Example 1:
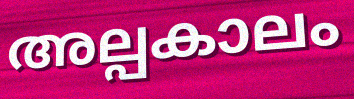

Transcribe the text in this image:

അല്പകാലം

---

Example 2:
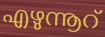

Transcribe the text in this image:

എഴുന്നൂറ്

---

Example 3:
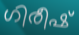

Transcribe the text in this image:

ഗിരീഷ്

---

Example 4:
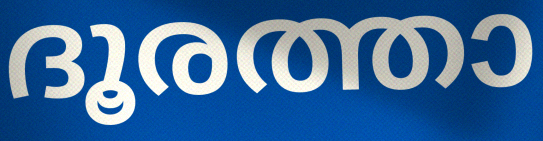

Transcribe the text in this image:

ദൂരത്താ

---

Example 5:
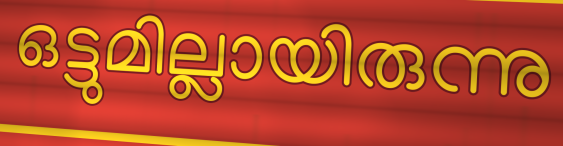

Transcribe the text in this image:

ഒട്ടുമില്ലായിരുന്നു